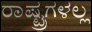
ರಾಷ್ಟ್ರಗಳಲ್ಲ